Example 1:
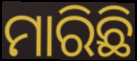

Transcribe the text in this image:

ମାରିଛି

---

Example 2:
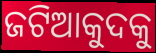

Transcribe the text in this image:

ଜଟିଆକୁଦକୁ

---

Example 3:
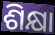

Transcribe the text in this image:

ଶିକ୍ଷା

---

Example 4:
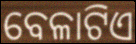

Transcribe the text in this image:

ବେଳାଟିଏ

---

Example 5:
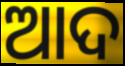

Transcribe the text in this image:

ଆଦ